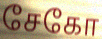
சேகோ